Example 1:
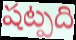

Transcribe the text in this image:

షట్పది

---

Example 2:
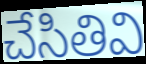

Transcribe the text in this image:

చేసితివి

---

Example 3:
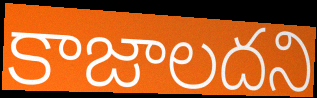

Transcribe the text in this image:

కాజాలదని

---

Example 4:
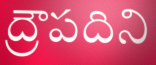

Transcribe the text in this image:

ద్రౌపదిని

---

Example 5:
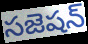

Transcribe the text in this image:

సజెషన్